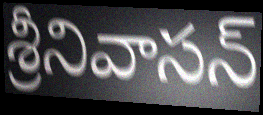
శ్రీనివాసన్